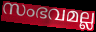
സംഭവമല്ല